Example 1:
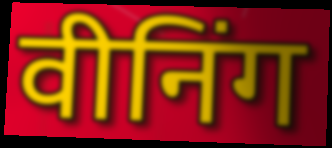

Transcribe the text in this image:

वीनिंग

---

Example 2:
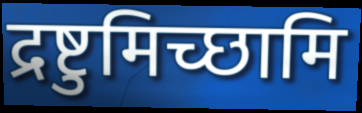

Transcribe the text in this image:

द्रष्टुमिच्छामि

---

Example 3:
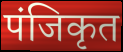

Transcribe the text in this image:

पंजिकृत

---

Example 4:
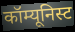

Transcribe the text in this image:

कॉम्यूनिस्ट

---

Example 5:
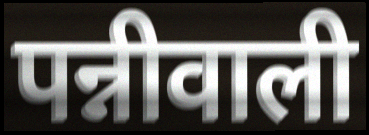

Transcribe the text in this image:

पन्नीवाली